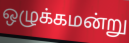
ஒழுக்கமன்று